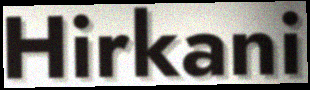
Hirkani